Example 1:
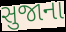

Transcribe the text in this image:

સુજાના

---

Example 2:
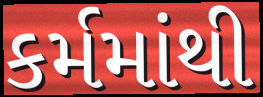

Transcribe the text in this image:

કર્મમાંથી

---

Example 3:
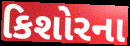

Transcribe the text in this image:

કિશોરના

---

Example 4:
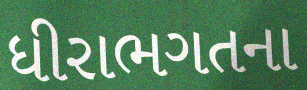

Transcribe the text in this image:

ધીરાભગતના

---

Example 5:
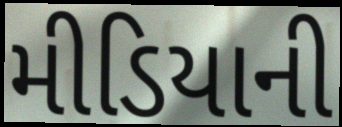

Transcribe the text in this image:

મીડિયાની